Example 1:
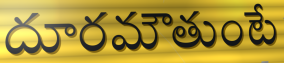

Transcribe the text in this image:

దూరమౌతుంటే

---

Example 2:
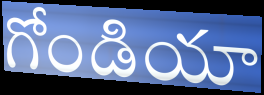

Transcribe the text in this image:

గోండియా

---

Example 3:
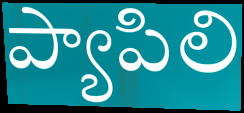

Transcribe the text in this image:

ప్యాపిలి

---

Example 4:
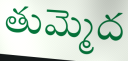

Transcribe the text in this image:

తుమ్మెద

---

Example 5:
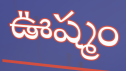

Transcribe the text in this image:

ఊష్మం